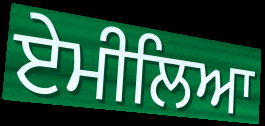
ਏਮੀਲਿਆ